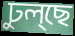
ঢুল্‌ছে